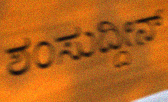
ಶಂಸುದ್ದೀನ್